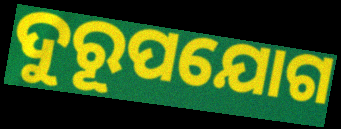
ଦୁରୂପଯୋଗ